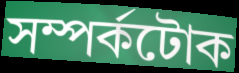
সম্পৰ্কটোক